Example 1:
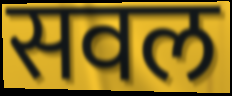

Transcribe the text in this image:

सवल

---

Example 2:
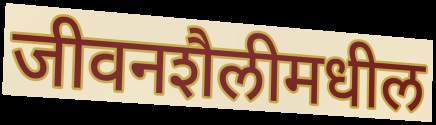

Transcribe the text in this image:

जीवनशैलीमधील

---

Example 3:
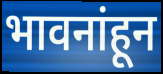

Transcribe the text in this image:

भावनांहून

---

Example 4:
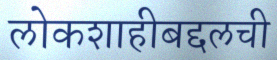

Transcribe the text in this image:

लोकशाहीबद्दलची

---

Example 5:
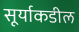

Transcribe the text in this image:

सूर्याकडील